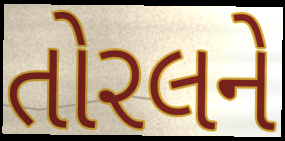
તોરલને